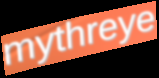
mythreye